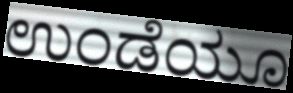
ಉಂಡೆಯೂ